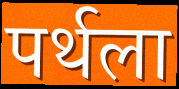
पर्थला